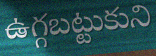
ఉగ్గబట్టుకుని